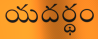
యదర్థం